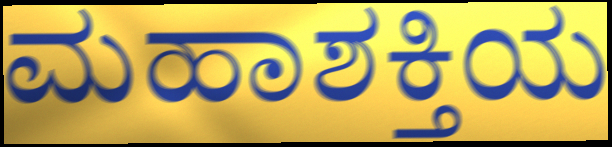
ಮಹಾಶಕ್ತಿಯ